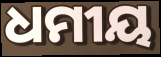
ଧମୀୟ